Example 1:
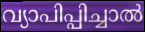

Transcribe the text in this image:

വ്യാപിപ്പിച്ചാൽ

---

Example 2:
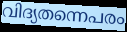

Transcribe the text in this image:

വിദ്യതന്നെപരം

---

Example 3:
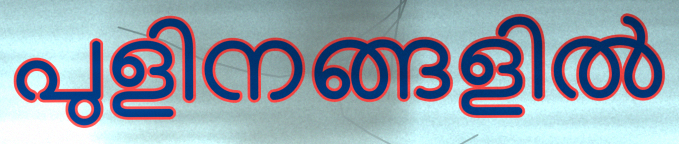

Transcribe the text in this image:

പുളിനങ്ങളിൽ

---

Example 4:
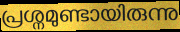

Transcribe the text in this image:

പ്രശ്നമുണ്ടായിരുന്നു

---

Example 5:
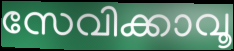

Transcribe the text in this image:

സേവിക്കാവൂ